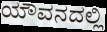
ಯೌವನದಲ್ಲಿ